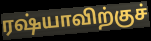
ரஷ்யாவிற்குச்